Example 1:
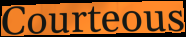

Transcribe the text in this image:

Courteous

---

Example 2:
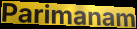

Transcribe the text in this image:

Parimanam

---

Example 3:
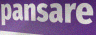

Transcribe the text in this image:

pansare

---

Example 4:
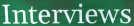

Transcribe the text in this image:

Interviews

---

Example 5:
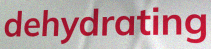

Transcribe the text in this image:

dehydrating